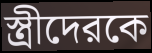
স্ত্রীদেরকে